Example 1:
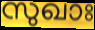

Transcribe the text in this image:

സുഖാഃ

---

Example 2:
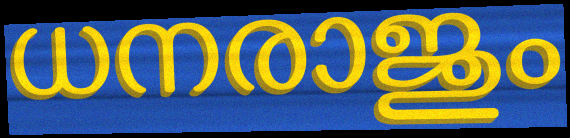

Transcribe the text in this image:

ധനരാജും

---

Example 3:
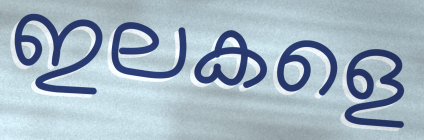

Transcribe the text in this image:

ഇലകളെ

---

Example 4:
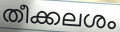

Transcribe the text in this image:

തീക്കലശം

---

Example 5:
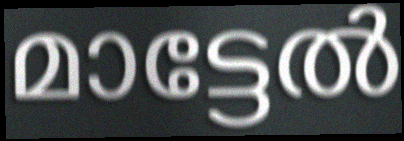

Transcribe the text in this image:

മാട്ടേൽ